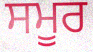
ਸਮੂਰ